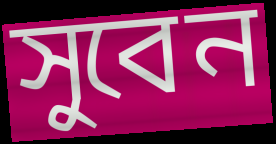
সুবেন